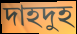
দাহদুহ